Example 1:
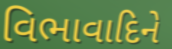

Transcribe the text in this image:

વિભાવાદિને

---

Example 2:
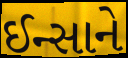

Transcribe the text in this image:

ઈન્સાને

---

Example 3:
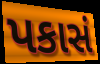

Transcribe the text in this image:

પકાસં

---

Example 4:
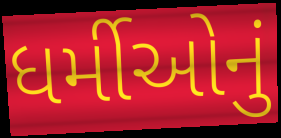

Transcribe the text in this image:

ધર્મીઓનું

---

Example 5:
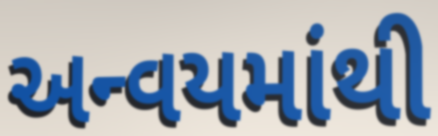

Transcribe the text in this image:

અન્વયમાંથી